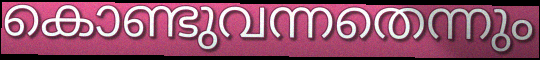
കൊണ്ടുവന്നതെന്നും